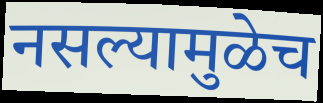
नसल्यामुळेच